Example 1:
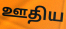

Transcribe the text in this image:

ஊதிய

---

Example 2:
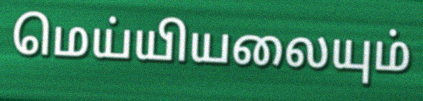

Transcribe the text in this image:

மெய்யியலையும்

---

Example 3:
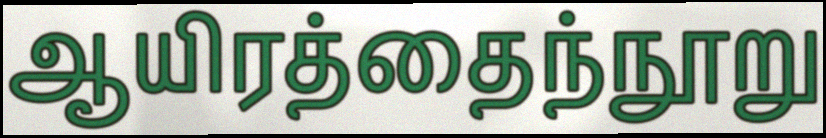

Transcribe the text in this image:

ஆயிரத்தைந்நூறு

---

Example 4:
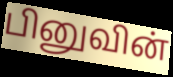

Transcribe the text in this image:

பினுவின்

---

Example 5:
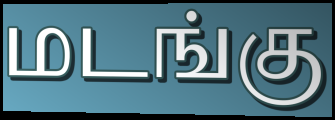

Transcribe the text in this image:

மடங்கு